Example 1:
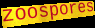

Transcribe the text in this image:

zoospores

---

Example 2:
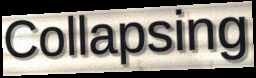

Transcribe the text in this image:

Collapsing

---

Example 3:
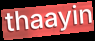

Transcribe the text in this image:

thaayin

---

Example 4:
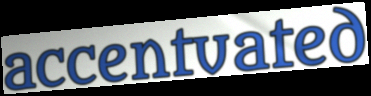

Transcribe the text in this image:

accentuated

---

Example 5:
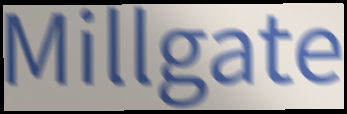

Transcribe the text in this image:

Millgate